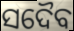
ସଦୈବ